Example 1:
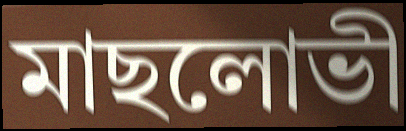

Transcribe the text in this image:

মাছলোভী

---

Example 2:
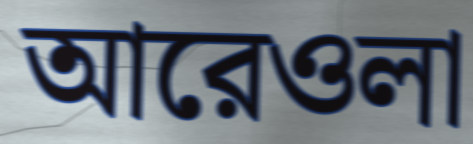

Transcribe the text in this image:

আরেওলা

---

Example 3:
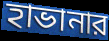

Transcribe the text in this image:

হাভানার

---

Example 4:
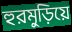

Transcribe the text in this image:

হুরমুড়িয়ে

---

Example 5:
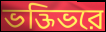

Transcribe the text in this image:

ভক্তিভরে